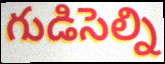
గుడిసెల్ని